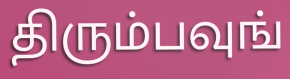
திரும்பவுங்